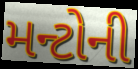
મન્ટોની